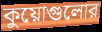
কুয়োগুলোর